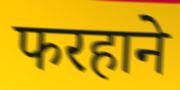
फरहाने